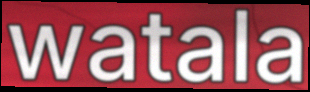
watala